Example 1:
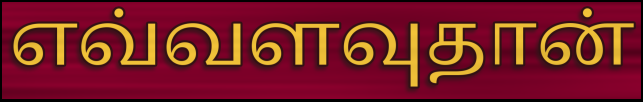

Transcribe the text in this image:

எவ்வளவுதான்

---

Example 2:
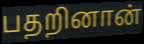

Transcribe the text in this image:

பதறினான்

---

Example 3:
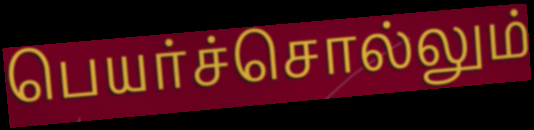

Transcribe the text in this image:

பெயர்ச்சொல்லும்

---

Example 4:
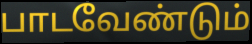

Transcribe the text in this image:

பாடவேண்டும்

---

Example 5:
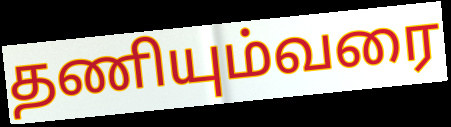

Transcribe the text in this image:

தணியும்வரை